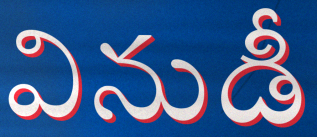
వినుడీ